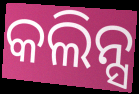
କଲିନ୍ସ